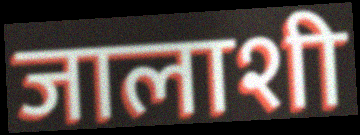
जालाशी